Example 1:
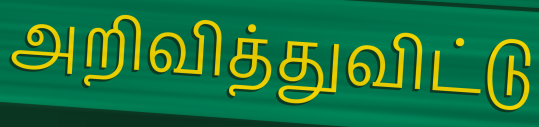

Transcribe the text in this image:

அறிவித்துவிட்டு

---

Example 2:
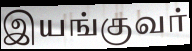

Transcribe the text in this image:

இயங்குவர்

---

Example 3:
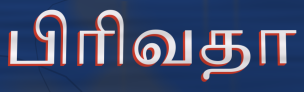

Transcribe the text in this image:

பிரிவதா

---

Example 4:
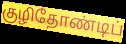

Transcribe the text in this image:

குழிதோண்டிப்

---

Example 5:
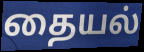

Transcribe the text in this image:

தையல்